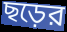
ছড়ের